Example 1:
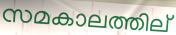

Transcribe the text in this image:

സമകാലത്തില്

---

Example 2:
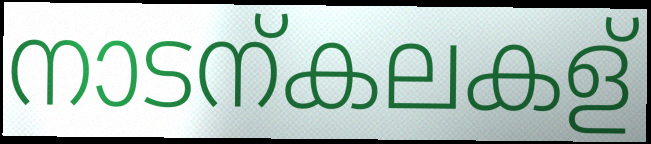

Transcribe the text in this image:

നാടന്കലകള്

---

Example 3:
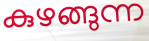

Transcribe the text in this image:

കുഴങ്ങുന്ന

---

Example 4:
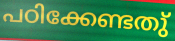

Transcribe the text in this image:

പഠിക്കേണ്ടതു്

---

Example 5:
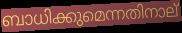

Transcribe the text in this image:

ബാധിക്കുമെന്നതിനാല്